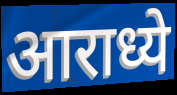
आराध्ये